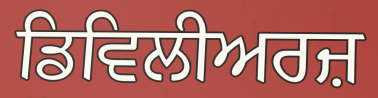
ਡਿਵਿਲੀਅਰਜ਼